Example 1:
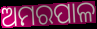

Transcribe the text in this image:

ଅମରପାଳ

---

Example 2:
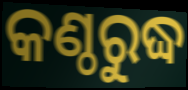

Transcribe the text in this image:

କଣ୍ଠରୁଦ୍ଧ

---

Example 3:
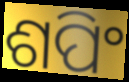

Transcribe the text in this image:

ଶପିଂ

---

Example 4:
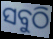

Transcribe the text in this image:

ସବୁଠି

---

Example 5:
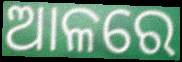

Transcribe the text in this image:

ଆଳରେ